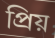
প্ৰিয়